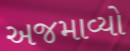
અજમાવ્યો